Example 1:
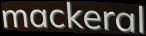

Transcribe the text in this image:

mackeral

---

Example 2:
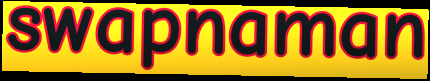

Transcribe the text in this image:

swapnaman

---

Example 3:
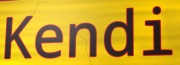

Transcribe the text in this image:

Kendi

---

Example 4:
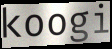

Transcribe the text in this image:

koogi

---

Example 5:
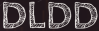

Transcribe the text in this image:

DLDD